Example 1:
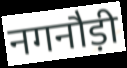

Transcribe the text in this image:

नगनौड़ी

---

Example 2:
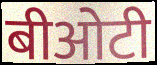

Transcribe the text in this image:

बीओटी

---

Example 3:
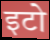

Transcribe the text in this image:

इटो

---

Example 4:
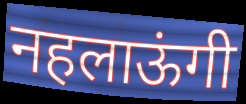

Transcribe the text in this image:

नहलाऊंगी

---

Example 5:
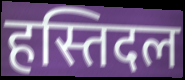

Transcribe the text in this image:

हस्तिदल